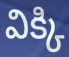
విక్కి